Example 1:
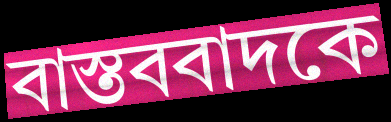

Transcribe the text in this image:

বাস্তববাদকে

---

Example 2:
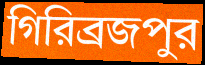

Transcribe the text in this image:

গিরিব্রজপুর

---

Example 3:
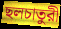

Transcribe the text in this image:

ছলচাতুরী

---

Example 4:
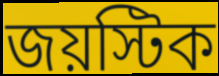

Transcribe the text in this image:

জয়স্টিক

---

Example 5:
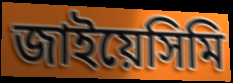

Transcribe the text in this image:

জাইয়েসিমি